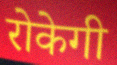
रोकेगी